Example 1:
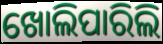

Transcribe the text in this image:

ଖୋଲିପାରିଲି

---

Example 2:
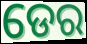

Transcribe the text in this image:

ଡେର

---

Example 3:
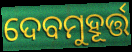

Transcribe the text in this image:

ଦେବମୁହୂର୍ତ୍ତ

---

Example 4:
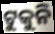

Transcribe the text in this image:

ଟୁକୁନି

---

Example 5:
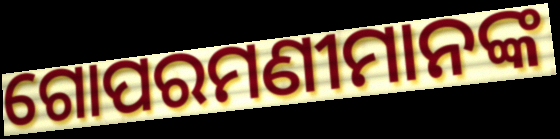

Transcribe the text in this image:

ଗୋପରମଣୀମାନଙ୍କ